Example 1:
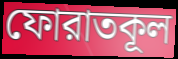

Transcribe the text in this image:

ফোরাতকূল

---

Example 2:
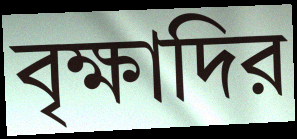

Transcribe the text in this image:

বৃক্ষাদির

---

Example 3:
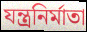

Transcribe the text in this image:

যন্ত্রনির্মাতা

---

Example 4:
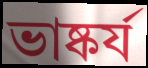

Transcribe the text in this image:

ভাষ্কর্য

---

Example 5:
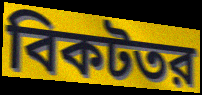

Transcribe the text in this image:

বিকটতর